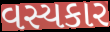
વસ્યકાર